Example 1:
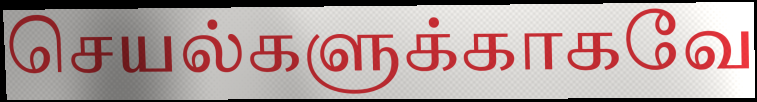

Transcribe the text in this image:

செயல்களுக்காகவே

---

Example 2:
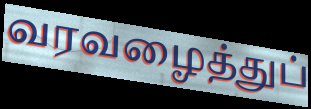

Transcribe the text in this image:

வரவழைத்துப்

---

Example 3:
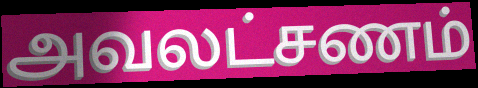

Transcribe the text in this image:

அவலட்சணம்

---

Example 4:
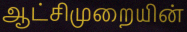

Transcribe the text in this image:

ஆட்சிமுறையின்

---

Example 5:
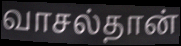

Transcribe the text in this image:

வாசல்தான்